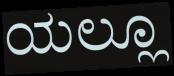
ಯಲ್ಲೂ